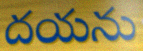
దయను